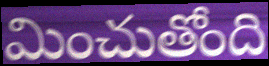
మించుతోంది